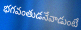
భగవంతుడనేవాడుంటే